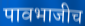
पावभाजीच